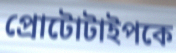
প্রোটোটাইপকে